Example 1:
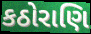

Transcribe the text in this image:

કઠોરાણિ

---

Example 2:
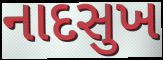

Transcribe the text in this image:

નાદસુખ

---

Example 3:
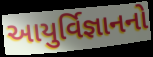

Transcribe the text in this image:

આયુર્વિજ્ઞાનનો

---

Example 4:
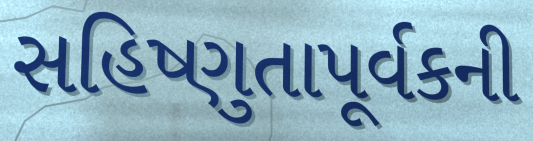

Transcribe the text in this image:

સહિષ્ણુતાપૂર્વકની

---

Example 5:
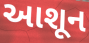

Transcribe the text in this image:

આશૂન